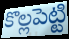
కొల్లపెట్టి